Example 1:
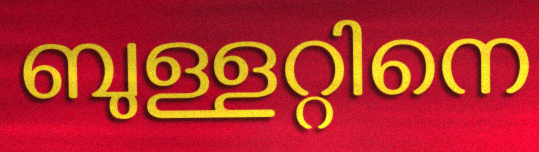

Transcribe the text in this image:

ബുള്ളറ്റിനെ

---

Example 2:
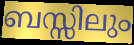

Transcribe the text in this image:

ബസ്സിലും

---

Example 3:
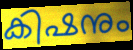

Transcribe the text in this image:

കിഷനും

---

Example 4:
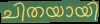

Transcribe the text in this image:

ചിതയായി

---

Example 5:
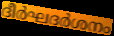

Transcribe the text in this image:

ദീർഘദർശനം